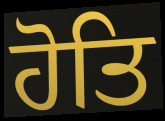
ਹੋਤਿ